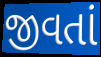
જીવતાં